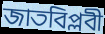
জাতবিপ্লবী